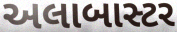
અલાબાસ્ટર